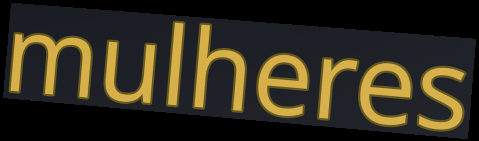
mulheres